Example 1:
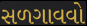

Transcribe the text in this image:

સળગાવવો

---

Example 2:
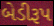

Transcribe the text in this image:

બેડીરૂપ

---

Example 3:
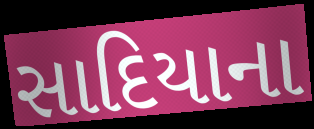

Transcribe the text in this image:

સાદિયાના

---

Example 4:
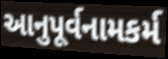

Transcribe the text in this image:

આનુપૂર્વનામકર્મ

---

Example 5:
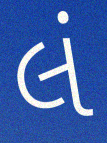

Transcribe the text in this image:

લં